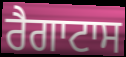
ਰੈਗਾਟਾਸ